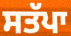
ਸਤੱਪਾ